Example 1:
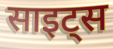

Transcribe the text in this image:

साइट्स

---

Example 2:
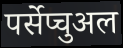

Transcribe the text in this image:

पर्सेप्चुअल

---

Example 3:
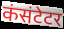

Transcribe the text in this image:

कंसंटेटर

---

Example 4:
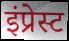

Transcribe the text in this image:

इंप्रेस्ट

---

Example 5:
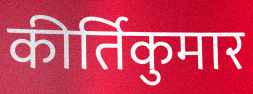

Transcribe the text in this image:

कीर्तिकुमार